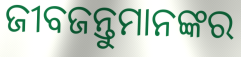
ଜୀବଜନ୍ତୁମାନଙ୍କର